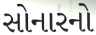
સોનારનો